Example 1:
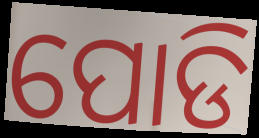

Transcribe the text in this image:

ପୋଡି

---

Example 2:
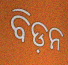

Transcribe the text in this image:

ବିଡ଼ନ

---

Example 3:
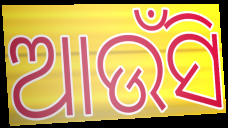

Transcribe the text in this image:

ଆଉଁସି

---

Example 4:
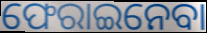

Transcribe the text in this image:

ଫେରାଇନେବା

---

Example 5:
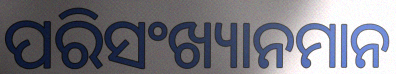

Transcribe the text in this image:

ପରିସଂଖ୍ୟାନମାନ